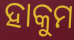
ହାକୁମ